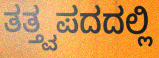
ತತ್ತ್ವಪದದಲ್ಲಿ